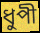
ধুপী